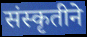
संस्कृतीने